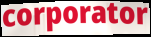
corporator